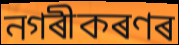
নগৰীকৰণৰ